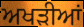
ਅਖੜੀਆਂ